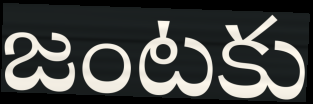
జంటకు